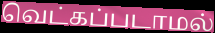
வெட்கப்படாமல்